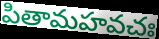
పితామహవచః